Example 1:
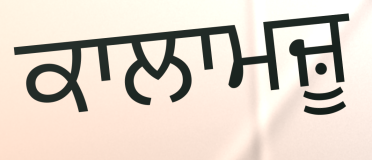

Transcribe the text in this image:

ਕਾਲਾਮਜ਼ੂ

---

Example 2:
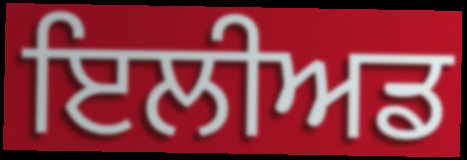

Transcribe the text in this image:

ਇਲੀਅਡ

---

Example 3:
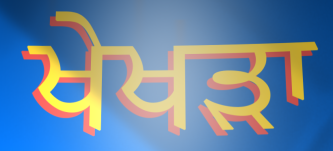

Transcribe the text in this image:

ਖੇਖੜਾ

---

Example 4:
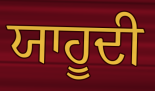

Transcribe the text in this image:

ਯਾਹੂਦੀ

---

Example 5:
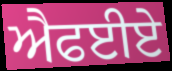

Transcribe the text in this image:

ਐਫਈਏ